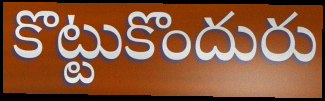
కొట్టుకొందురు